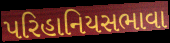
પરિહાનિયસભાવા